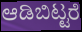
ಆಡಿಬಿಟ್ಟರೆ